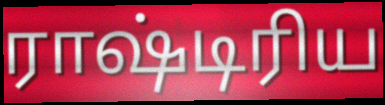
ராஷ்டிரிய